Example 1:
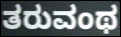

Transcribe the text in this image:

ತರುವಂಥ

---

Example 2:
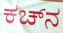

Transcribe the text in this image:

ಕಚ್‌ನ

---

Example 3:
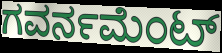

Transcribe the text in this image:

ಗವರ್ನಮೆಂಟ್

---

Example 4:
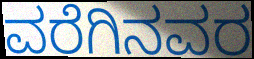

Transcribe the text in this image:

ವರೆಗಿನವರ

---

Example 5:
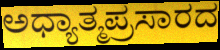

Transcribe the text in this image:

ಅಧ್ಯಾತ್ಮಪ್ರಸಾರದ